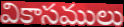
వికాసములు